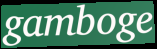
gamboge